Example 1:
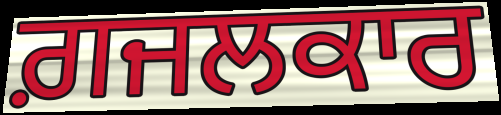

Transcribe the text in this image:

ਗ਼ਜਲਕਾਰ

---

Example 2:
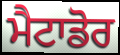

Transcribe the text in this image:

ਮੈਟਾਡੋਰ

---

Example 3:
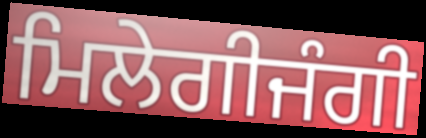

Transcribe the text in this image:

ਮਿਲੇਗੀਜੰਗੀ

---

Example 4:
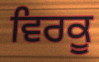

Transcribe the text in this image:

ਵਿਰਕੂ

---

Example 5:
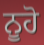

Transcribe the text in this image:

ਨੂਹੋ